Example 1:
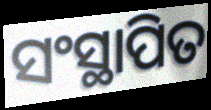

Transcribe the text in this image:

ସଂସ୍ଥାପିତ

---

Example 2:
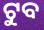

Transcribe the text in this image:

ଟୁବ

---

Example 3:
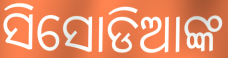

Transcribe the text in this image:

ସିସୋଡିଆଙ୍କ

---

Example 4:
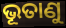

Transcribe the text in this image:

ଭୂତାଣୁ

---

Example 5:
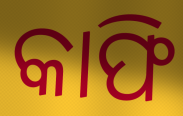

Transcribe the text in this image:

କାଫି